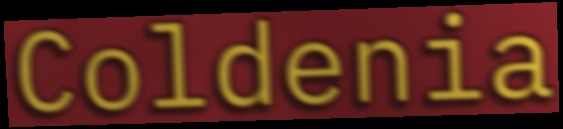
Coldenia